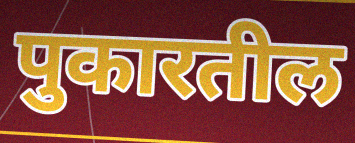
पुकारतील